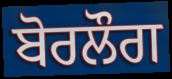
ਬੋਰਲੌਗ